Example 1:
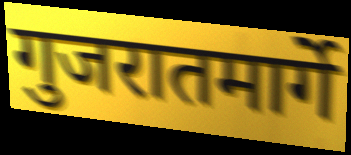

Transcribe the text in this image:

गुजरातमार्गे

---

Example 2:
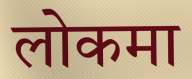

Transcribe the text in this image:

लोकमा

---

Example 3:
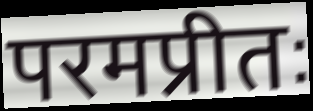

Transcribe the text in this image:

परमप्रीतः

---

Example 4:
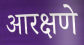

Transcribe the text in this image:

आरक्षणे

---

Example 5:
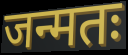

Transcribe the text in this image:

जन्मतः